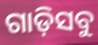
ଗାଡ଼ିସବୁ